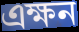
এক্ষন